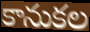
కానుకల